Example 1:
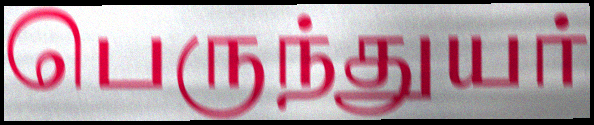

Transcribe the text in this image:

பெருந்துயர்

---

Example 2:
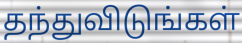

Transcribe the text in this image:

தந்துவிடுங்கள்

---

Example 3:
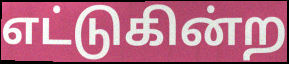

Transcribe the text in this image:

எட்டுகின்ற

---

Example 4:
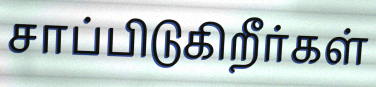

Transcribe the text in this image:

சாப்பிடுகிறீர்கள்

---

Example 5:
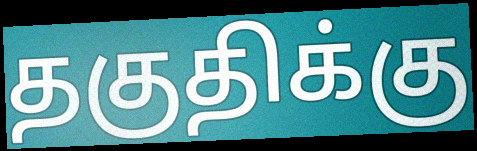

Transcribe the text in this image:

தகுதிக்கு